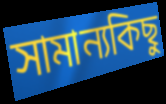
সামান্যকিছু